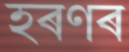
হৰণৰ